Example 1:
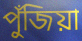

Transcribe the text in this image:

পুঁজিয়া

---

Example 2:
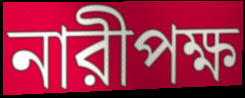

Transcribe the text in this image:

নারীপক্ষ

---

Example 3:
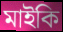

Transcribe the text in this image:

মাইকি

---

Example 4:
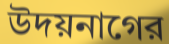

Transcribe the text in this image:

উদয়নাগের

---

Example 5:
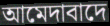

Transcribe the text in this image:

আমেদাবাদে